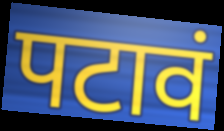
पटावं